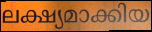
ലക്ഷ്യമാക്കിയ